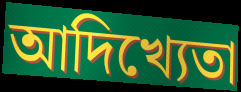
আদিখ্যেতা